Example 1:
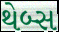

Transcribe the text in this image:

થેબ્સ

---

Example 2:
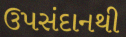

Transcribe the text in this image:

ઉપસંદાનથી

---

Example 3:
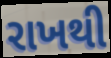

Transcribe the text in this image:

રાખથી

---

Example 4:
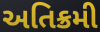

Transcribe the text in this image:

અતિક્રમી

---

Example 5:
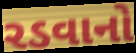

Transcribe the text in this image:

રડવાનો